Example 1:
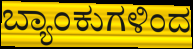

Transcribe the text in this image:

ಬ್ಯಾಂಕುಗಳಿಂದ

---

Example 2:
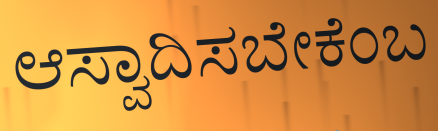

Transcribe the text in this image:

ಆಸ್ವಾದಿಸಬೇಕೆಂಬ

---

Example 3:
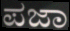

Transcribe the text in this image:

ಪಜಾ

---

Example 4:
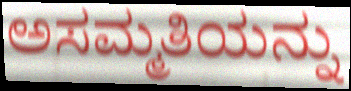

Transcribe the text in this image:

ಅಸಮ್ಮತಿಯನ್ನು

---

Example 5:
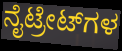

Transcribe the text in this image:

ನೈಟ್ರೇಟ್‌ಗಳ